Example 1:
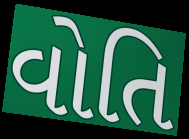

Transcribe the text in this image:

વોતિ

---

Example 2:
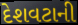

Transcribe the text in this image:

દેશવટાની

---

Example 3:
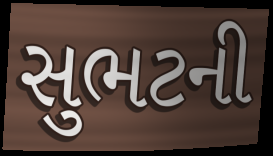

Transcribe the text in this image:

સુભટની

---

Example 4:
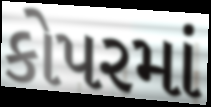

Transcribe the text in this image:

કોપરમાં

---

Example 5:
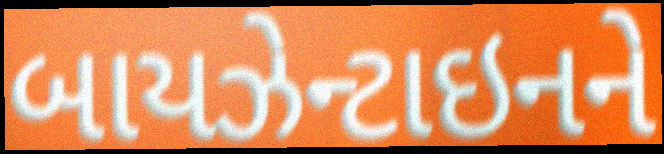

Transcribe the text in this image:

બાયઝેન્ટાઇનને